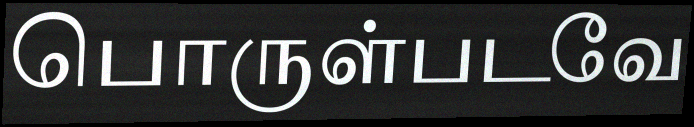
பொருள்படவே